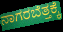
ನಾಗರಬೆತ್ತಕ್ಕೆ